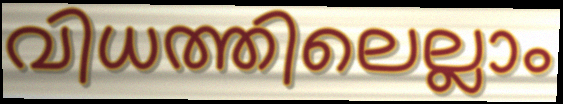
വിധത്തിലെല്ലാം